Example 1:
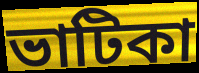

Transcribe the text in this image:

ভাটিকা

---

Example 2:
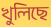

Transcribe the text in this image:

খুলিছে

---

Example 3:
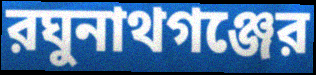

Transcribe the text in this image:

রঘুনাথগঞ্জের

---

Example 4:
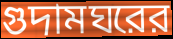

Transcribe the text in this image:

গুদামঘরের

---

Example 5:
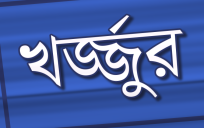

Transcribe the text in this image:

খর্জ্জুর